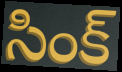
సింక్